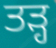
ਤੜ੍ਹ